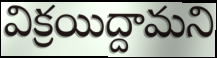
విక్రయిద్దామని